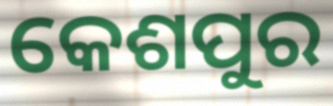
କେଶପୁର